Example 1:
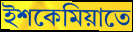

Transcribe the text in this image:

ইশকেমিয়াতে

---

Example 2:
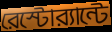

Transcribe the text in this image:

রেস্টোর‍্যান্টে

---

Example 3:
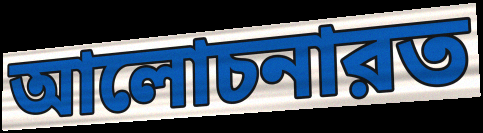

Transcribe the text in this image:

আলোচনারত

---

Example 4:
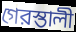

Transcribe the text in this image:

গেরস্তালী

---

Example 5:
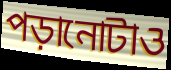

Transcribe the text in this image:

পড়ানোটাও